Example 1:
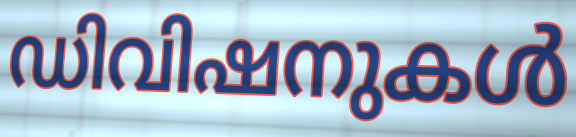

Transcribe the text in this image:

ഡിവിഷനുകൾ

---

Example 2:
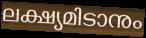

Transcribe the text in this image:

ലക്ഷ്യമിടാനും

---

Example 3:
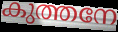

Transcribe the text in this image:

കുത്തനേ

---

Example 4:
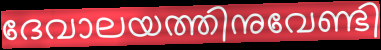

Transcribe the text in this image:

ദേവാലയത്തിനുവേണ്ടി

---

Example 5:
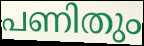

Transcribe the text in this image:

പണിതും